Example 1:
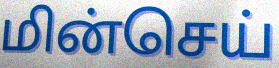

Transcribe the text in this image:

மின்செய்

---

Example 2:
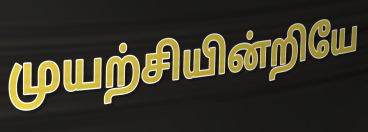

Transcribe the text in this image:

முயற்சியின்றியே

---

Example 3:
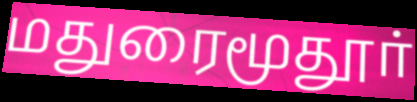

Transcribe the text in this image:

மதுரைமூதூர்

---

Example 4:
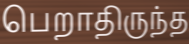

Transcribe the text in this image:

பெறாதிருந்த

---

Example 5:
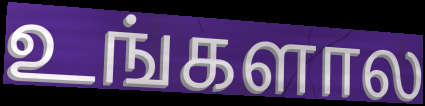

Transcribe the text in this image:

உங்களால